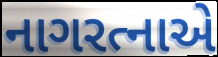
નાગરત્નાએ